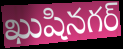
ఖుషినగర్